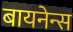
बायनेन्स